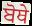
ਬੋਥੇ